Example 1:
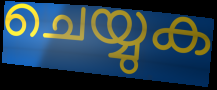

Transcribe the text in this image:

ചെയ്യുക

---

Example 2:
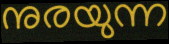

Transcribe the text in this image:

നുരയുന്ന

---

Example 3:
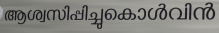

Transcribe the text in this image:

ആശ്വസിപ്പിച്ചുകൊൾവിൻ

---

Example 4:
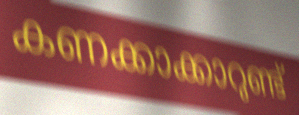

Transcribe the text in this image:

കണക്കാക്കാറുണ്ട്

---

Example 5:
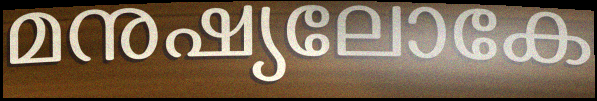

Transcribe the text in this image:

മനുഷ്യലോകേ